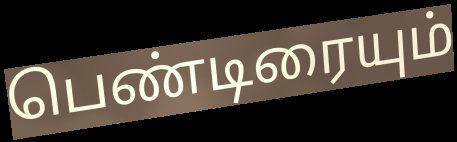
பெண்டிரையும்